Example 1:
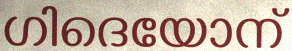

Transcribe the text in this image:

ഗിദെയോന്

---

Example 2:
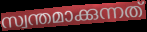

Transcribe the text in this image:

സ്വന്തമാക്കുന്നത്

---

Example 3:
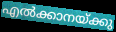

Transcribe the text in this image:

എൽക്കാനയ്ക്കു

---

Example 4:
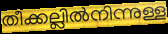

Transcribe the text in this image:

തീക്കല്ലിൽനിന്നുള്ള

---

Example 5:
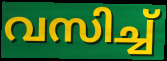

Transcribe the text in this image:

വസിച്ച്